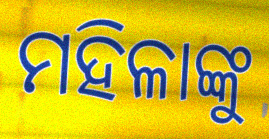
ମହିଳାଙ୍କୁ